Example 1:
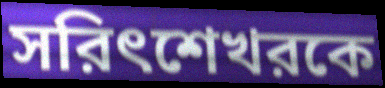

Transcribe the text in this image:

সরিৎশেখরকে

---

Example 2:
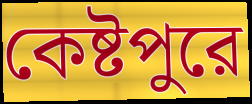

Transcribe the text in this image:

কেষ্টপুরে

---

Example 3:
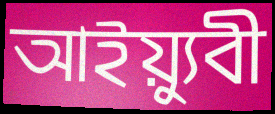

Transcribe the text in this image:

আইয়্যুবী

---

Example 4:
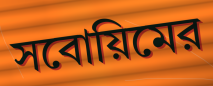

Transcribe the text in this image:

সবোয়িমের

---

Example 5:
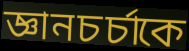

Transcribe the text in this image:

জ্ঞানচর্চাকে